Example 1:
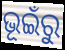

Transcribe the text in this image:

ଭୂଇଁରୁ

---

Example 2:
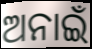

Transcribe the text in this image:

ଅନାଇଁ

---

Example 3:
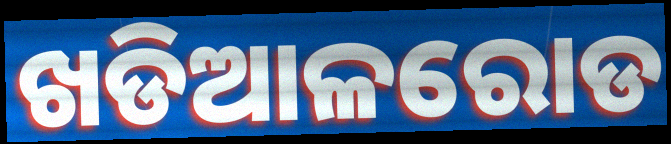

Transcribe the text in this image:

ଖଡିଆଳରୋଡ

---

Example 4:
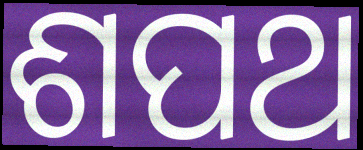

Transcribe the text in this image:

ଶପଥ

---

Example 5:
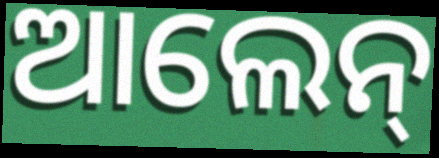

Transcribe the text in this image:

ଆଲେନ୍